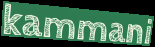
kammani